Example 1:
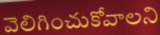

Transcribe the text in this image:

వెలిగించుకోవాలని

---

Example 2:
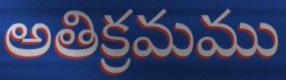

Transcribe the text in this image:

అతిక్రమము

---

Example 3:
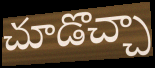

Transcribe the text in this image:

చూడొచ్చా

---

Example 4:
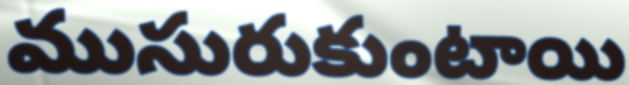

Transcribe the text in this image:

ముసురుకుంటాయి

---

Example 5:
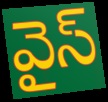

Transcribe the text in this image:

వైస్